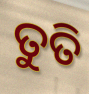
ତୁତି